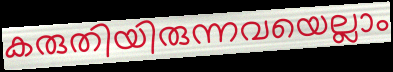
കരുതിയിരുന്നവയെല്ലാം